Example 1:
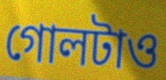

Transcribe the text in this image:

গোলটাও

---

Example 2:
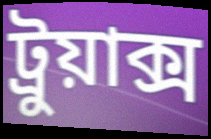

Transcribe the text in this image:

ট্রুয়াক্স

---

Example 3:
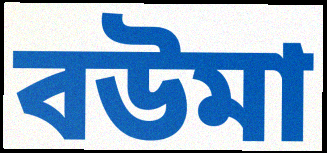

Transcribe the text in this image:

বউমা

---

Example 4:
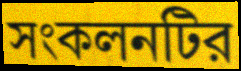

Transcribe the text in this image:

সংকলনটির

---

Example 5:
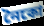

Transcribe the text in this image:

নৈকো